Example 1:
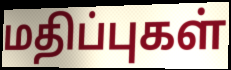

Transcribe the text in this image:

மதிப்புகள்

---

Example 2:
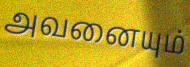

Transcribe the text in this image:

அவனையும்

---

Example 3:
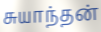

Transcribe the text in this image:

சுயாந்தன்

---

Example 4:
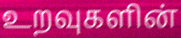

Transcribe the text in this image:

உறவுகளின்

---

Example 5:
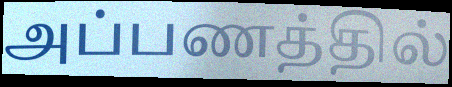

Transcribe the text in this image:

அப்பணத்தில்